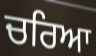
ਚਰਿਆ